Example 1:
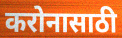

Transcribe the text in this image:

करोनासाठी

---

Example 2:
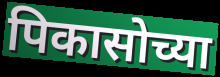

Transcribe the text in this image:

पिकासोच्या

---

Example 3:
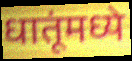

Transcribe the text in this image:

धातूंमध्ये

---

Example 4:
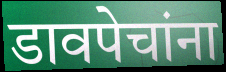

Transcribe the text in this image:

डावपेचांना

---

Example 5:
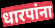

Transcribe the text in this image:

धारपांना